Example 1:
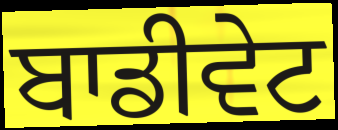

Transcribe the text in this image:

ਬਾਡੀਵੇਟ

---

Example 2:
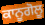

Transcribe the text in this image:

ਕਾਨੂਗੋਲੂ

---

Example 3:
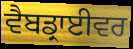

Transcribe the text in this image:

ਵੈਬਡ੍ਰਾਈਵਰ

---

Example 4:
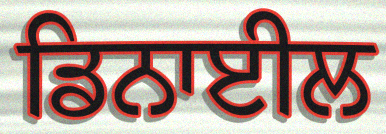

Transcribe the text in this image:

ਡਿਨਾਈਲ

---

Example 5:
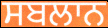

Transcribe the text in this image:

ਸਬਲਾਨ